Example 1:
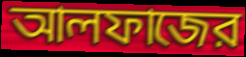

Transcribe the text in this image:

আলফাজের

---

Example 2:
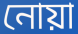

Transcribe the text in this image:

নোয়া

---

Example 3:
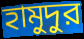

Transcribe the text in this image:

হামুদুর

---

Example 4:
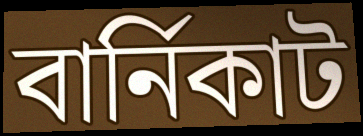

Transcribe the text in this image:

বার্নিকাট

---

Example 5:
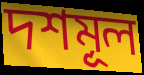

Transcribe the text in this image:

দশমূল